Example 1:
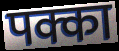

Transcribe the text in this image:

पक्का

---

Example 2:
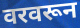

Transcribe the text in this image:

वरवरून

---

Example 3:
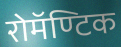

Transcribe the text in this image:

रोमॅण्टिक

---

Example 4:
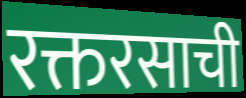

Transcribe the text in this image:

रक्तरसाची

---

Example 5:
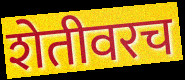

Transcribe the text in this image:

शेतीवरच